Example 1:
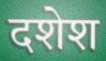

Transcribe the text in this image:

दशेश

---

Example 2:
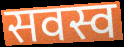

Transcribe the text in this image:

सवस्व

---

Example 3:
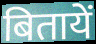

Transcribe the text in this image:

बितायें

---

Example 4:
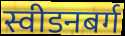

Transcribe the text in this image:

स्वीडनबर्ग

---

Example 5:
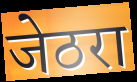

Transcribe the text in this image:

जेठरा